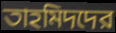
তাহমিদদের